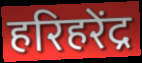
हरिहरेंद्र